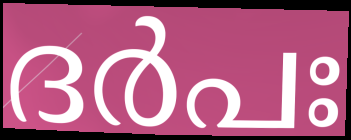
ദർപഃ